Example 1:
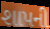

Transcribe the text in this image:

શાપની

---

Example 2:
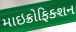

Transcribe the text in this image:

માઇક્રોફિક્શન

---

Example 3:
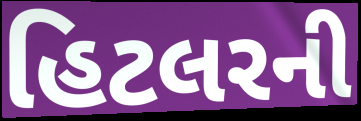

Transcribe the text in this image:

હિટલરની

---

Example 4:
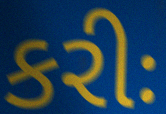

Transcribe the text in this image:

કરીઃ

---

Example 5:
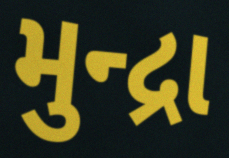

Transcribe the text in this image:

મુન્દ્રા